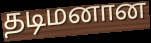
தடிமனான